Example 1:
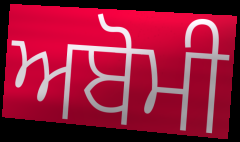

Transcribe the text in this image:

ਅਬੋਮੀ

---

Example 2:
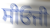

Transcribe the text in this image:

ਸੀਓਜੀ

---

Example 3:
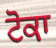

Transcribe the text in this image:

ਟੋਕਾ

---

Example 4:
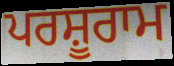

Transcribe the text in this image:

ਪਰਸ਼ੂਰਾਮ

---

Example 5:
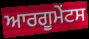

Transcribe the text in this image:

ਆਰਗੂਮੇੰਟਸ